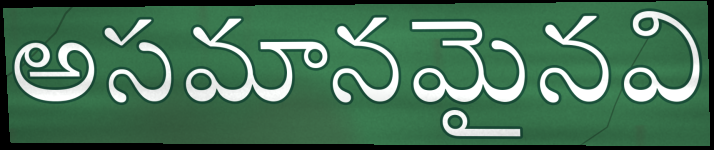
అసమానమైనవి